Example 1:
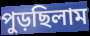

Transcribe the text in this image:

পুড়ছিলাম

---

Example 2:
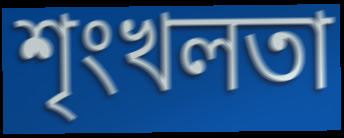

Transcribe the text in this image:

শৃংখলতা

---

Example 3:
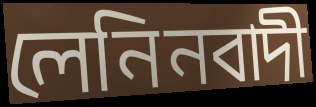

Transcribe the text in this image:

লেনিনবাদী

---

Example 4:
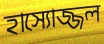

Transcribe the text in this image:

হাস্যোজ্জল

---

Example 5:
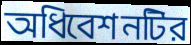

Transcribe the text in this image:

অধিবেশনটির